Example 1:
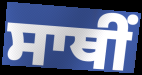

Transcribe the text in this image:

ਸਾਥੀਂ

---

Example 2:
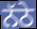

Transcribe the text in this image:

ਨੱਠੇ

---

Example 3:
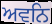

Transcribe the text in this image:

ਅਵਨਿ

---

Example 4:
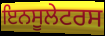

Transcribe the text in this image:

ਇਨਸੂਲੇਟਰਸ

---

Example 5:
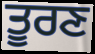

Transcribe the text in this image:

ਤੂਰਣ